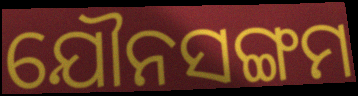
ଯୌନସଙ୍ଗମ